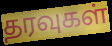
தரவுகள்